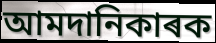
আমদানিকাৰক